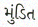
મુંડિત